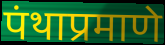
पंथाप्रमाणे